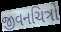
જીવનચિત્રો